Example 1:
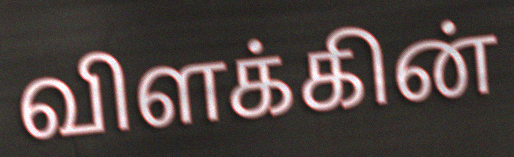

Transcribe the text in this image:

விளக்கின்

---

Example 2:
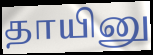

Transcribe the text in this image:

தாயினு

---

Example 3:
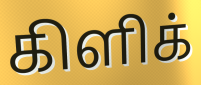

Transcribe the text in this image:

கிளிக்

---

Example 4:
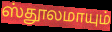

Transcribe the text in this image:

ஸ்தூலமாயும்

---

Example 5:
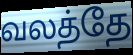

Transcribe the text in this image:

வலத்தே